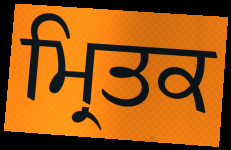
ਮ੍ਰਿਤਕ